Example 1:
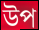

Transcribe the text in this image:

উপ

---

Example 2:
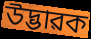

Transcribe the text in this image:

উদ্ভাৱক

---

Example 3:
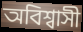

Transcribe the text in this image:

অবিশ্বাসী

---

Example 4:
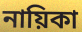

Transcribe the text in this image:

নায়িকা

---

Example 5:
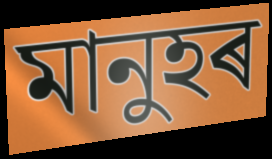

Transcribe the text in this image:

মানুহৰ